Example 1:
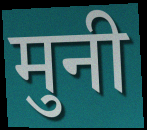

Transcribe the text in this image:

मुनी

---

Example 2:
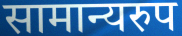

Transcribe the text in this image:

सामान्यरुप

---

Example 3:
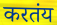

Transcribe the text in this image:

करतंय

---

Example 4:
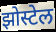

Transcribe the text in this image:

झोस्टेल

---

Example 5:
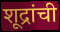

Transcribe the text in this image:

शूद्रांची